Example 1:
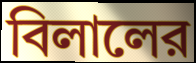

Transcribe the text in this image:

বিলালের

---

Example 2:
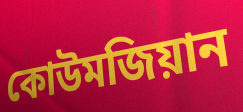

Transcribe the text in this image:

কোউমজিয়ান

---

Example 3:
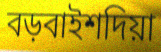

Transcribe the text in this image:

বড়বাইশদিয়া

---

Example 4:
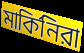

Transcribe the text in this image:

মার্কিনিরা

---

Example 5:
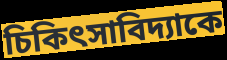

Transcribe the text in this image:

চিকিৎসাবিদ্যাকে